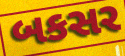
બકસર